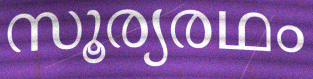
സൂര്യരഥം